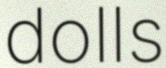
dolls